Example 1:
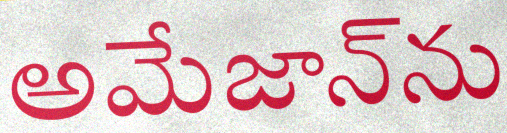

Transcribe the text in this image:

అమేజాన్‌ను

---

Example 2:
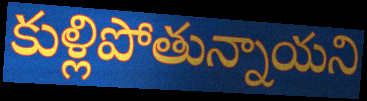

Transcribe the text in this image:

కుళ్లిపోతున్నాయని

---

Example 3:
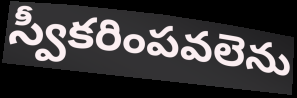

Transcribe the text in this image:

స్వీకరింపవలెను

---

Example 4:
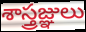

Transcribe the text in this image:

శాస్త్రజ్ఞులు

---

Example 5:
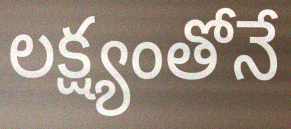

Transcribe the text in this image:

లక్ష్యంతోనే